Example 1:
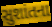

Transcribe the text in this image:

સુશાંતના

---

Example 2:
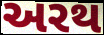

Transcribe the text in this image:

અરથ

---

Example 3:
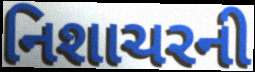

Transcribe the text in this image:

નિશાચરની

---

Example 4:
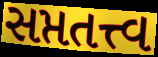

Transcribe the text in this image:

સપ્તતત્ત્વ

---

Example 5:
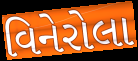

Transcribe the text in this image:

વિનેરોલા